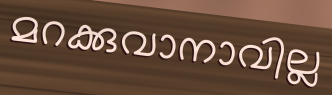
മറക്കുവാനാവില്ല